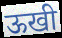
ऊखी